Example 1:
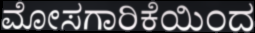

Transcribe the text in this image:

ಮೋಸಗಾರಿಕೆಯಿಂದ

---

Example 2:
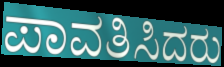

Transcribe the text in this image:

ಪಾವತಿಸಿದರು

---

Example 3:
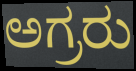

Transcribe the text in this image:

ಅಗ್ರರು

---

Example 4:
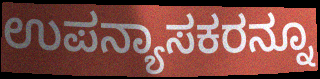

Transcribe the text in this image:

ಉಪನ್ಯಾಸಕರನ್ನೂ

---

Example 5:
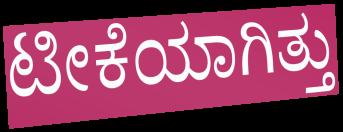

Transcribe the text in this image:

ಟೀಕೆಯಾಗಿತ್ತು